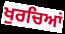
ਖੁਰਚਿਆਂ